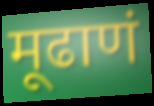
मूढाणं